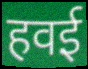
हवई